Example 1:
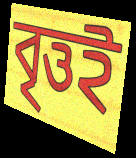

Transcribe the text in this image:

বৃত্তই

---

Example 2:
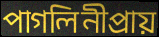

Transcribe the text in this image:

পাগলিনীপ্রায়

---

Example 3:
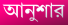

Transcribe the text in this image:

আনুশার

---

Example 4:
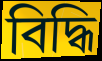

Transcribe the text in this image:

বিদ্ধি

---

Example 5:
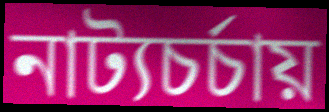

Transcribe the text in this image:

নাট্যচর্চায়